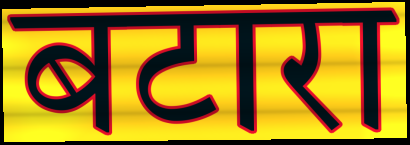
बटारा